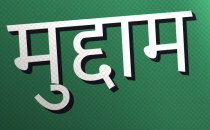
मुद्दाम